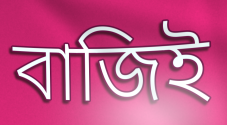
বাজিই